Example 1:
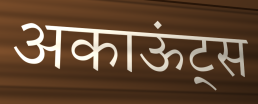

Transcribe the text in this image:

अकाऊंट्स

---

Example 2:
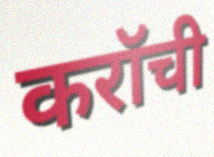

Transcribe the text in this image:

करॉची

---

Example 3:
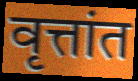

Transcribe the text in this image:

वृत्तांत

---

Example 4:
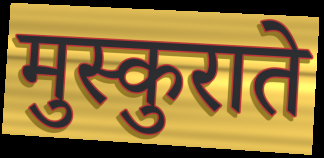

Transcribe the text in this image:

मुस्कुराते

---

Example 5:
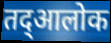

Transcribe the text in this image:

तद्आलोक